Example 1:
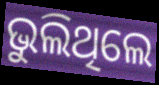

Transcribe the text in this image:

ଭୁଲିଥିଲେ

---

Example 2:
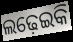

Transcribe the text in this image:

ଲଢ଼େଇକି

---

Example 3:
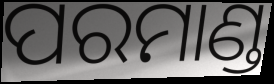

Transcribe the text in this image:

ପରମାଣ୍ଡ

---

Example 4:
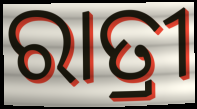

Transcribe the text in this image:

ରାତ୍ରୀ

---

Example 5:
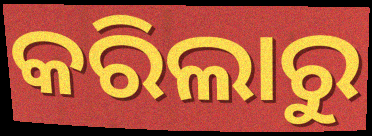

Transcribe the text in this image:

କରିଲାରୁ